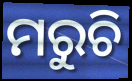
ମରୁଚି